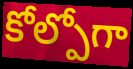
కోల్పోగా